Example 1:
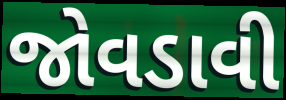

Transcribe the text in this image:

જોવડાવી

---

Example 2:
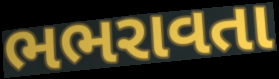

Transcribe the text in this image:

ભભરાવતા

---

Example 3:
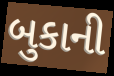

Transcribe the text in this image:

બુકાની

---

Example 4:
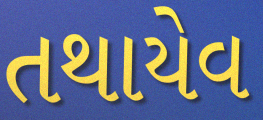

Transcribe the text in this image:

તથાયેવ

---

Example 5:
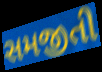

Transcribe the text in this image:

સમજીતી